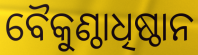
ବୈକୁଣ୍ଠାଧିଷ୍ଠାନ